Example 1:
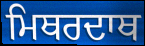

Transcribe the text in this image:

ਮਿਥਰਦਾਥ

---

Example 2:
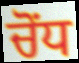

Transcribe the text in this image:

ਚੋਂਧ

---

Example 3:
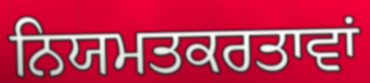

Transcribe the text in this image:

ਨਿਯਮਤਕਰਤਾਵਾਂ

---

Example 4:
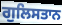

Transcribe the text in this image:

ਗੁਲਿਸਤਾਨ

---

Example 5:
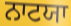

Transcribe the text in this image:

ਨਾਟਯਾ